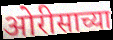
ओरीसाच्या